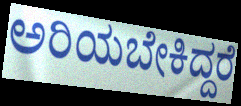
ಅರಿಯಬೇಕಿದ್ದರೆ